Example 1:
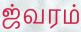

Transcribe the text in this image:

ஜ்வரம்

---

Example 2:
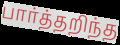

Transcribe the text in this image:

பார்த்தறிந்த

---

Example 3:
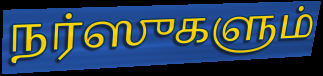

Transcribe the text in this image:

நர்ஸுகளும்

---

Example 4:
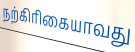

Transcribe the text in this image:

நற்கிரிகையாவது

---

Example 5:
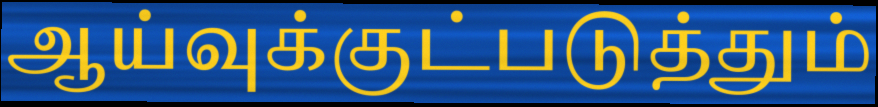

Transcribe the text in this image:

ஆய்வுக்குட்படுத்தும்